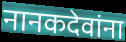
नानकदेवांना